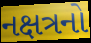
નક્ષત્રનો